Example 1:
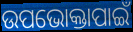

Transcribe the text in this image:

ଉପଭୋକ୍ତାପାଇଁ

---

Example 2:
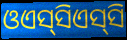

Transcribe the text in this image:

ଓଏସ୍‌ସିଏସ୍‌ସି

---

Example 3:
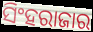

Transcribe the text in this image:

ସିଂହରାଜାର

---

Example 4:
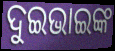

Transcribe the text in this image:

ଦୁଇଭାଇଙ୍କ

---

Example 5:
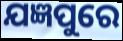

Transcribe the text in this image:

ଯଜ୍ଞପୁରେ